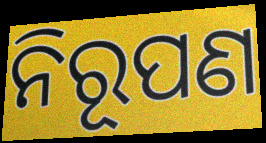
ନିରୂପଣ